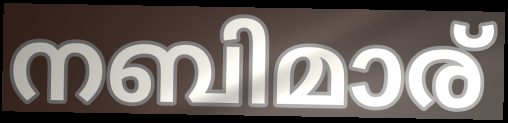
നബിമാര്